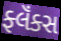
ફ્લૅંક્સ